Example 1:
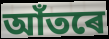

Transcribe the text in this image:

আঁতৰে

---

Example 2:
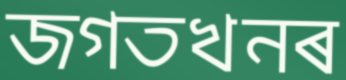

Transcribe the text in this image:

জগতখনৰ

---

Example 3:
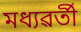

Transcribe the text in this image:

মধ্যৱৰ্তী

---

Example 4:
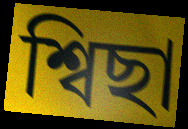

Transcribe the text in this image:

শ্বিছা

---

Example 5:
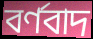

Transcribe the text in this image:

বৰ্ণবাদ